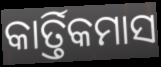
କାର୍ତ୍ତିକମାସ